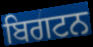
ਬਿਗਟਨ